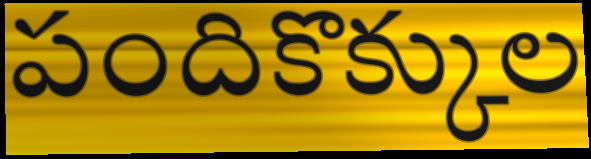
పందికొక్కుల